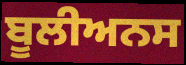
ਬੂਲੀਅਨਸ